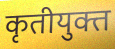
कृतीयुक्त